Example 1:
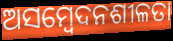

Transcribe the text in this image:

ଅସମ୍ବେଦନଶୀଳତା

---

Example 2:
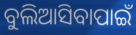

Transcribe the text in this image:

ବୁଲିଆସିବାପାଇଁ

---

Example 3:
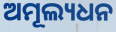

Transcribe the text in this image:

ଅମୂଲ୍ୟଧନ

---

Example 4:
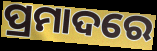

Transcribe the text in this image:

ପ୍ରମାଦରେ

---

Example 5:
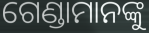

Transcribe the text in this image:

ଗେଣ୍ଡାମାନଙ୍କୁ